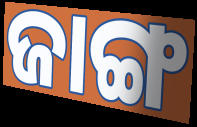
ଜାଙ୍ଗ